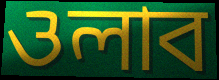
ওলাব